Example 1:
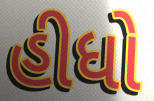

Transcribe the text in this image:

હીધો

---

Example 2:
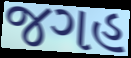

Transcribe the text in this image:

જગહ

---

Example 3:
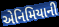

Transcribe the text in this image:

એનિમિયાની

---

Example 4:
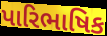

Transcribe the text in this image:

પારિભાષિક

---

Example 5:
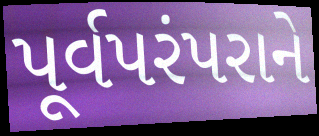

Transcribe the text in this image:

પૂર્વપરંપરાને